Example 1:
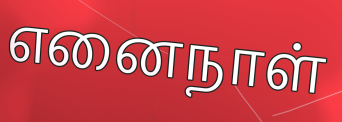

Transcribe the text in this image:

எனைநாள்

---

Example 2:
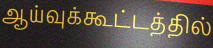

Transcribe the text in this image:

ஆய்வுக்கூட்டத்தில்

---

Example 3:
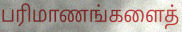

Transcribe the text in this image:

பரிமாணங்களைத்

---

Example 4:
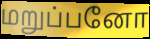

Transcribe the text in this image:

மறுப்பனோ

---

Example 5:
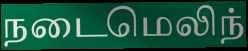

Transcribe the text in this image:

நடைமெலிந்